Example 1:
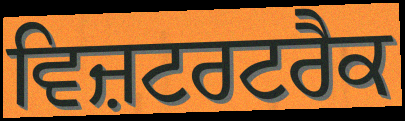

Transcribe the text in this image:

ਵਿਜ਼ਟਰਟਰੈਕ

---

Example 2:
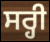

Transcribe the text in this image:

ਸਰ੍ਹੀ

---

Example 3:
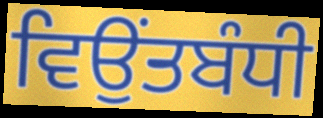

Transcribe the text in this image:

ਵਿਉਂਤਬੰਧੀ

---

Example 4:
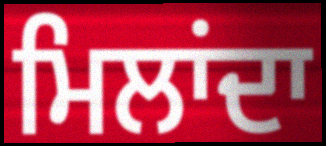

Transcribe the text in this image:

ਮਿਲਾਂਦਾ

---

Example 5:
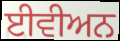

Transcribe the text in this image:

ਈਵੀਅਨ